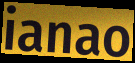
ianao